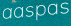
aaspas